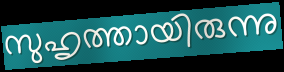
സുഹൃത്തായിരുന്നു